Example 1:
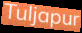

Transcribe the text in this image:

Tuljapur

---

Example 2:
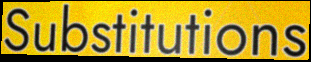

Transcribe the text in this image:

Substitutions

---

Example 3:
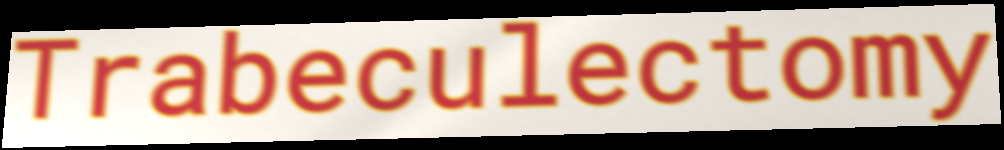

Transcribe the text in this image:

Trabeculectomy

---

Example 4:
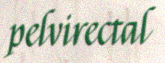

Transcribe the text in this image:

pelvirectal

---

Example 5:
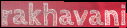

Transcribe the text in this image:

rakhavani